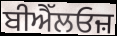
ਬੀਐੱਲਓਜ਼